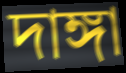
দাঙ্গা